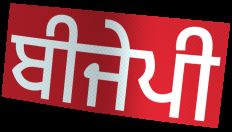
ਬੀਜੇਪੀ